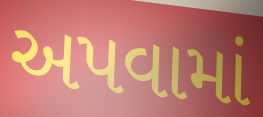
અપવામાં